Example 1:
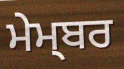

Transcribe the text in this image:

ਮੇਮ੍ਬਰ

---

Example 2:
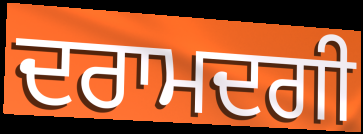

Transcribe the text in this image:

ਦਰਾਮਦਗੀ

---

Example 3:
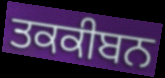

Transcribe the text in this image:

ਤਕਕੀਬਨ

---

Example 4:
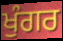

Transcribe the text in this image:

ਖੁੰਗਰ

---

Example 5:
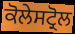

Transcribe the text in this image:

ਕੋਲੇਸਟ੍ਰੋਲ